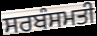
ਸਰਬੰਸਮਤੀ